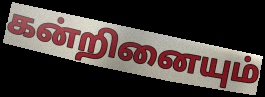
கன்றினையும்